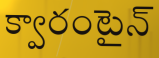
క్వారంటైన్